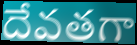
దేవతగా